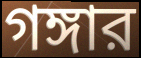
গঙ্গার